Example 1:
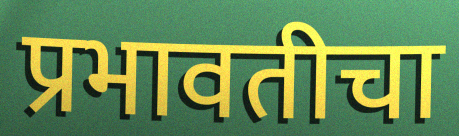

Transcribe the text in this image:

प्रभावतीचा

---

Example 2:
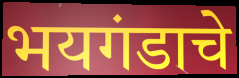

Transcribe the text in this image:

भयगंडाचे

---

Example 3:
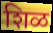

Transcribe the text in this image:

शिळ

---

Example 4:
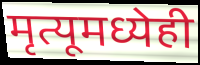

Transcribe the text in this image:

मृत्यूमध्येही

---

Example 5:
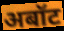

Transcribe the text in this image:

अबॉट